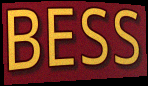
BESS